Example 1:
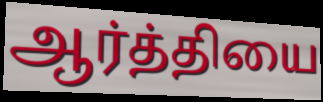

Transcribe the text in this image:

ஆர்த்தியை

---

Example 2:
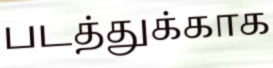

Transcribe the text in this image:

படத்துக்காக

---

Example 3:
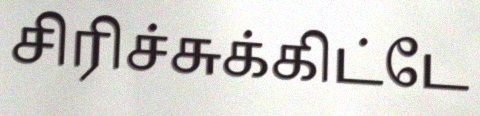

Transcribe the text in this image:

சிரிச்சுக்கிட்டே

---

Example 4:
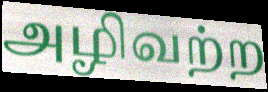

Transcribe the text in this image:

அழிவற்ற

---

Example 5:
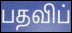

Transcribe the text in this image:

பதவிப்